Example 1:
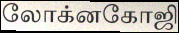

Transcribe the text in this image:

லோக்னகோஜி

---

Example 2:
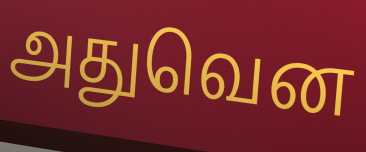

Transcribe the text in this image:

அதுவென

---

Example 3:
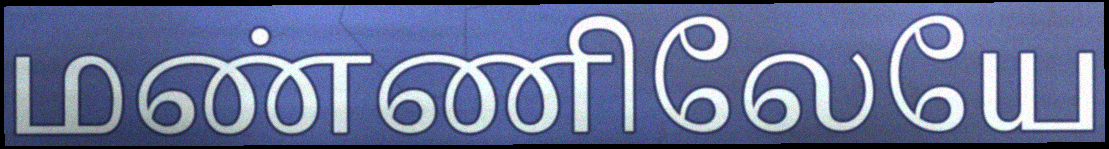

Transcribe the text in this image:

மண்ணிலேயே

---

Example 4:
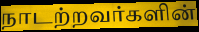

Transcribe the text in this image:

நாடற்றவர்களின்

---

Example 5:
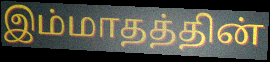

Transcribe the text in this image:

இம்மாதத்தின்